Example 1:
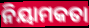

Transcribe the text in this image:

ନିୟାମକତା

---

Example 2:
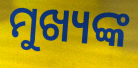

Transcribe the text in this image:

ମୁଖ୍ୟଙ୍କ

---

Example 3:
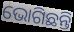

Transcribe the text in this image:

ଭୋଗିଛନ୍ତି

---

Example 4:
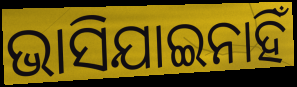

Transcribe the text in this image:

ଭାସିଯାଇନାହିଁ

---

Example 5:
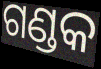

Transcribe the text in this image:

ଗଣ୍ଡକ